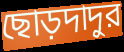
ছোড়দাদুর